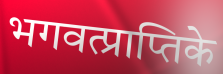
भगवत्प्राप्तिके